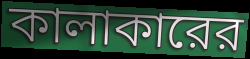
কালাকারের